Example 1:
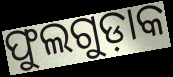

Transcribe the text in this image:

ଫୁଲଗୁଡ଼ାକ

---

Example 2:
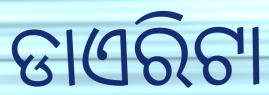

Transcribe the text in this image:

ଡାଏରିଟା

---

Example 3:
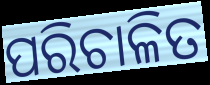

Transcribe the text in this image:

ପରିଚାଳିତ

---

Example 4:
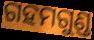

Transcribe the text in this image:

ଗହମଗୁଣ୍ଡ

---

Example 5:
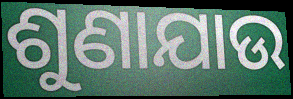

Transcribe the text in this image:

ଶୁଣାଯାଉ